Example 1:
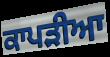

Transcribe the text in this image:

ਕਾਪੜੀਆ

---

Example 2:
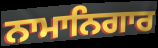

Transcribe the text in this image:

ਨਾਮਾਨਿਗਾਰ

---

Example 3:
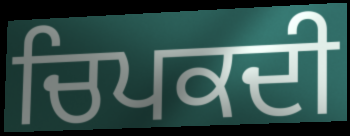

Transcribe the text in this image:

ਚਿਪਕਦੀ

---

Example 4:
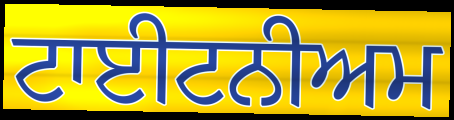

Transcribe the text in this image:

ਟਾਈਟਨੀਅਮ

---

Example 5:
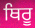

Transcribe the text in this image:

ਥਿਰੂ